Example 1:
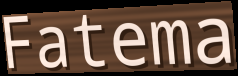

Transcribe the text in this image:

Fatema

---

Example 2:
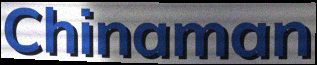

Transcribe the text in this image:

Chinaman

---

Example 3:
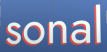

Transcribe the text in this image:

sonal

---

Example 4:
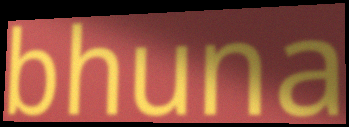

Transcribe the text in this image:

bhuna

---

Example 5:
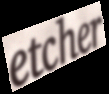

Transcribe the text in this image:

etcher